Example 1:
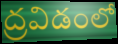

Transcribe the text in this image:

ద్రవిడంలో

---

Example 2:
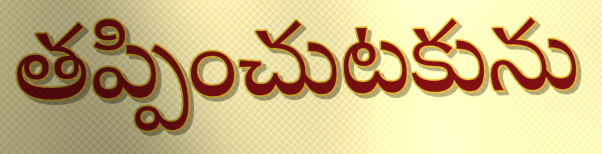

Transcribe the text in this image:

తప్పించుటకును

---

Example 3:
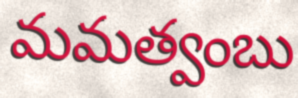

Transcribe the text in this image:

మమత్వంబు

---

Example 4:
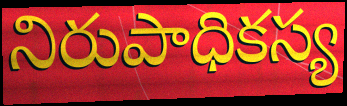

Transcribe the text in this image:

నిరుపాధికస్య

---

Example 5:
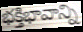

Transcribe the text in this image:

భక్తిభావాన్ని